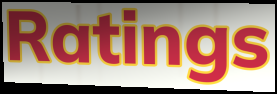
Ratings